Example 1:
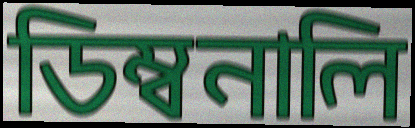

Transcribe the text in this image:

ডিম্বনালি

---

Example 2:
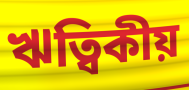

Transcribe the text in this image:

ঋত্বিকীয়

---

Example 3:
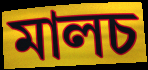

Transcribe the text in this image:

মালচ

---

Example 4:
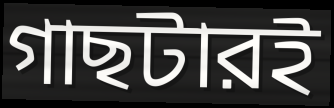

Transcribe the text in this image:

গাছটারই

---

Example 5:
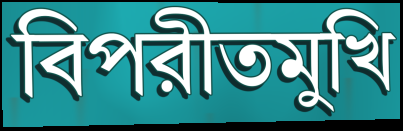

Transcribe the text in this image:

বিপরীতমুখি